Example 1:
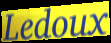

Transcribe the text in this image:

Ledoux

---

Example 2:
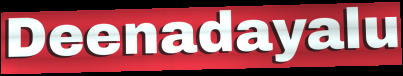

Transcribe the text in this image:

Deenadayalu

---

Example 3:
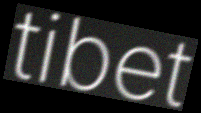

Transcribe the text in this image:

tibet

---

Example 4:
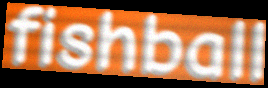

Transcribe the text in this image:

fishball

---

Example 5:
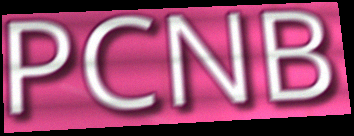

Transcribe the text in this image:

PCNB